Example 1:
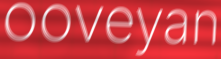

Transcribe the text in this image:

ooveyan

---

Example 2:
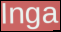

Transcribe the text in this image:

Inga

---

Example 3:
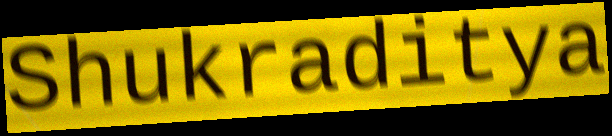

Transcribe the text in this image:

Shukraditya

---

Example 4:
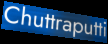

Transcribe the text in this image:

Chuttraputti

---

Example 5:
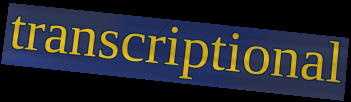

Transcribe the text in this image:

transcriptional